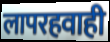
लापरहवाही